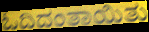
ಓದಿದಂತಾಯಿತು